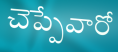
చెప్పేవారో